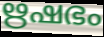
ഋഷഭം